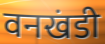
वनखंडी